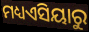
ମଧ୍ୟଏସିୟାରୁ